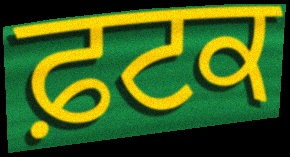
ਫ਼ਟਕ